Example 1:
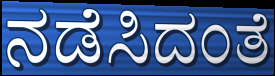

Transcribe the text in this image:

ನಡೆಸಿದಂತೆ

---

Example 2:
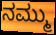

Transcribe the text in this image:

ನಮ್ಮು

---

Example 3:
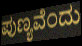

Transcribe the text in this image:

ಪುಣ್ಯವೆಂದು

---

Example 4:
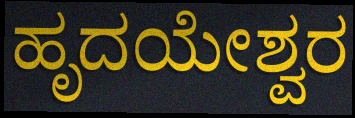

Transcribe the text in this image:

ಹೃದಯೇಶ್ವರ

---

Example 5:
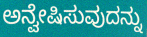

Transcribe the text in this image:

ಅನ್ವೇಷಿಸುವುದನ್ನು